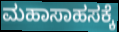
ಮಹಾಸಾಹಸಕ್ಕೆ